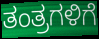
ತಂತ್ರಗಳಿಗೆ